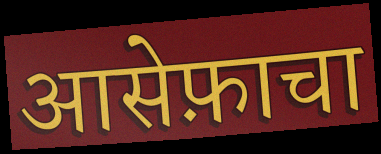
आसेफ़ाचा